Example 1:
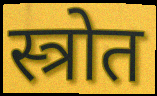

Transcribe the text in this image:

स्त्रोत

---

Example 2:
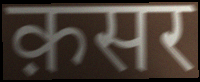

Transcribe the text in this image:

क़सर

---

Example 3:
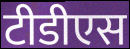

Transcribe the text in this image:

टीडीएस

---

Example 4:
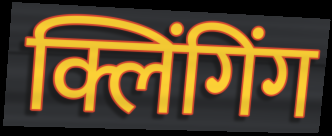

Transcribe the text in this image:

क्लिंगिंग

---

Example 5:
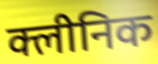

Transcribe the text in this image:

क्लीनिक